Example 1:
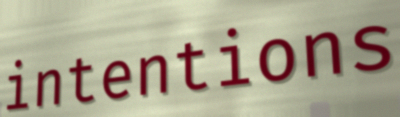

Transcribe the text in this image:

intentions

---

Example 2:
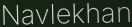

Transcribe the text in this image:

Navlekhan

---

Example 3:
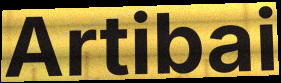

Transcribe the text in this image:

Artibai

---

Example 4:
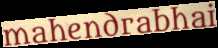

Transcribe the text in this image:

mahendrabhai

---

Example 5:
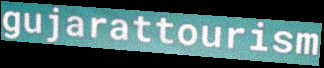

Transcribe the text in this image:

gujarattourism